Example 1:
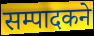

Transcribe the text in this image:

सम्पादकने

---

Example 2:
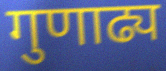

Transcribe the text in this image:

गुणाढ्य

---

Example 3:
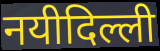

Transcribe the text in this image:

नयीदिल्ली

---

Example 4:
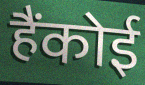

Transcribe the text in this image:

हैंकोई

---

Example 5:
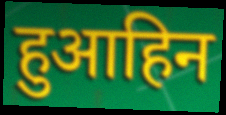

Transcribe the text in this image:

हुआहिन